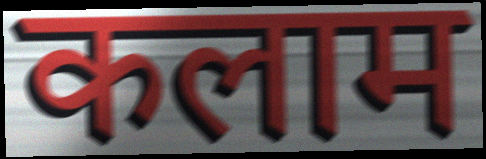
कलाम